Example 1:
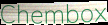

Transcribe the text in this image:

Chembox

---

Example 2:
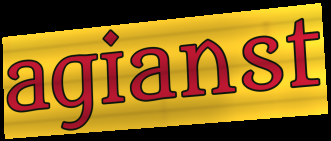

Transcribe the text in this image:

agianst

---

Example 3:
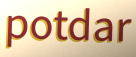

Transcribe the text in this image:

potdar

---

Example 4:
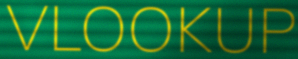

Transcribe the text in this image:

VLOOKUP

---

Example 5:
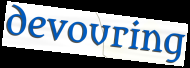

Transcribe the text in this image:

devouring